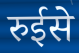
रुईसे